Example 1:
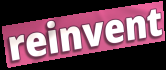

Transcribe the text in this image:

reinvent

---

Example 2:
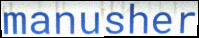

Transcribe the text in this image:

manusher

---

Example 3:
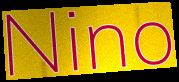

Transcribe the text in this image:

Nino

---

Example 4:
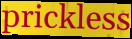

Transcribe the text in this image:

prickless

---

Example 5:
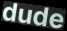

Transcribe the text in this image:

dude